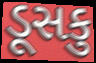
ડૂસકુ